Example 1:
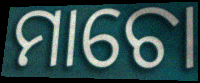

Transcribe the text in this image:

ମାଚୋ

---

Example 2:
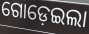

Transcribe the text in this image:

ଗୋଡ଼େଇଲା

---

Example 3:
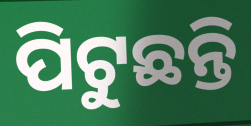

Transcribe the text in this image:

ପିଟୁଛନ୍ତି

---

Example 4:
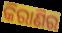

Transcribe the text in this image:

କିରାଣିର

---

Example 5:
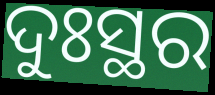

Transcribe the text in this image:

ଦୁଃସ୍ଥର